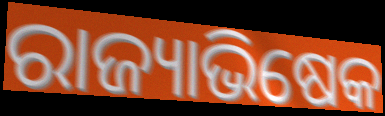
ରାଜ୍ୟାଭିଷେକ